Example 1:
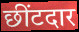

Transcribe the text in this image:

छींटदार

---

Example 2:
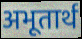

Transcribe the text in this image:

अभूतार्थ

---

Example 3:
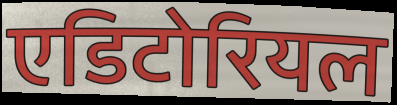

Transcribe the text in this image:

एडिटोरियल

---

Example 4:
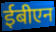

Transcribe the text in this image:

ईबीएन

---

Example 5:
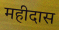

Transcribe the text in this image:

महीदास